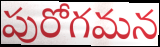
పురోగమన